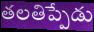
తలతిప్పేడు